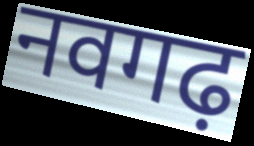
नवगढ़